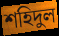
শহিদুল